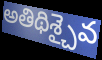
అతిథిశ్చైవ